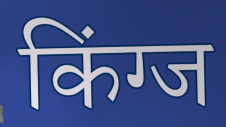
किंग्ज